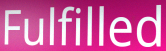
Fulfilled